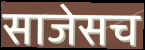
साजेसच